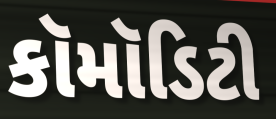
કૉમૉડિટી